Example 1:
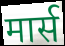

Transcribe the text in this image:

मार्स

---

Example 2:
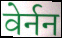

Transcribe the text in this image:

वेर्नन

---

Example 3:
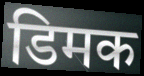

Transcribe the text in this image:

डिमक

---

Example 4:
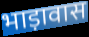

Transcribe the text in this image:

भाड़ावास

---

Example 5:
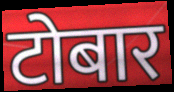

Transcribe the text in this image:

टोबार